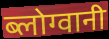
ब्लोग्वानी